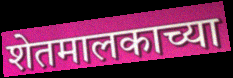
शेतमालकाच्या